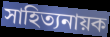
সাহিত্যনায়ক